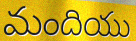
మందియు